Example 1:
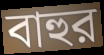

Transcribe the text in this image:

বাহুর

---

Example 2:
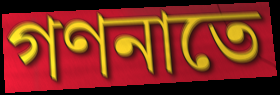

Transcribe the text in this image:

গণনাতে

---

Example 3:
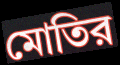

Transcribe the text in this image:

মোতির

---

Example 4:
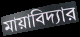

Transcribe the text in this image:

মায়াবিদ্যার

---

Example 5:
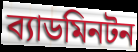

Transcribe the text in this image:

ব্যাডমিনটন